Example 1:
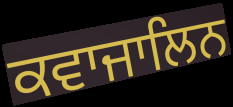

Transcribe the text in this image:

ਕਵਾਜਾਲਿਨ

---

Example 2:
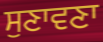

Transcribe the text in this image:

ਸੁਣਾਵਣਾ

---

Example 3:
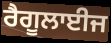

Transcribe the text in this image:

ਰੈਗੂਲਾਈਜ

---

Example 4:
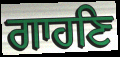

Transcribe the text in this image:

ਗਾਹਣਿ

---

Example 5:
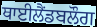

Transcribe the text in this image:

ਥਾਈਲੈਂਡਬਲੌਗ